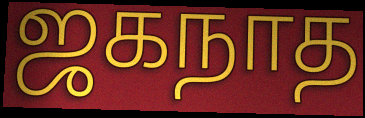
ஜகநாத